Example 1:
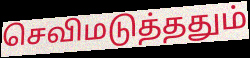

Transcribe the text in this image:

செவிமடுத்ததும்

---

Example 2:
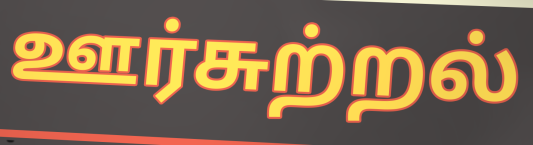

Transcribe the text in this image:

ஊர்சுற்றல்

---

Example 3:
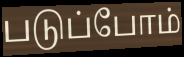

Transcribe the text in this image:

படுப்போம்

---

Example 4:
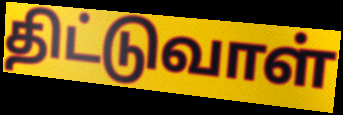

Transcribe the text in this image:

திட்டுவாள்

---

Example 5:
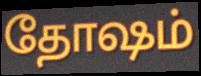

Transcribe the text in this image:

தோஷம்